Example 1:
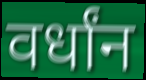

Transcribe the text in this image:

वर्धांन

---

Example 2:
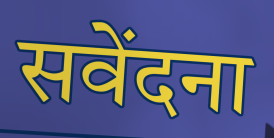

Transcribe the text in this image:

सवेंदना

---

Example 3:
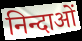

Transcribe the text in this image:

निन्दाओं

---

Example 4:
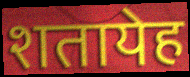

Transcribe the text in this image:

शतायेह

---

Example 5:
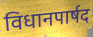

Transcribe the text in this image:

विधानपार्षद